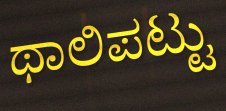
ಥಾಲಿಪಟ್ಟು